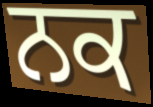
ਨਕ